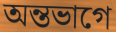
অন্তভাগে